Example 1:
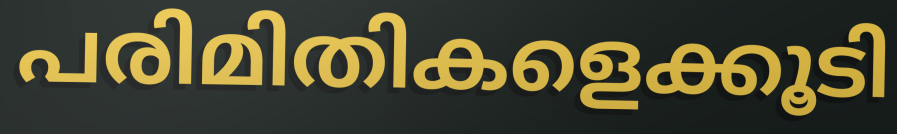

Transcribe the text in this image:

പരിമിതികളെക്കൂടി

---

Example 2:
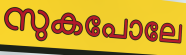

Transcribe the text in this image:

സുകപോലേ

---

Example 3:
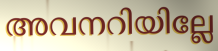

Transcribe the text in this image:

അവനറിയില്ലേ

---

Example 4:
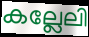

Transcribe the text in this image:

കല്ലേലി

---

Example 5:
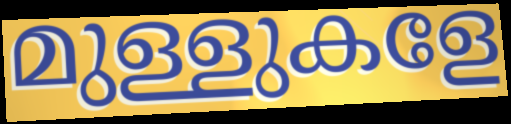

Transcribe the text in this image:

മുള്ളുകളേ